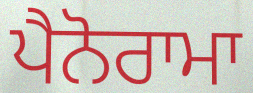
ਪੈਨੋਰਾਮਾ